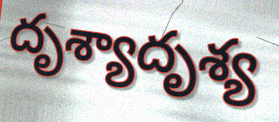
దృశ్యాదృశ్య